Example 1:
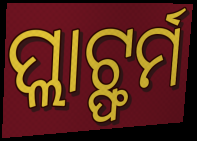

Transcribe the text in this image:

ପ୍ଲାଟ୍ଫର୍ମ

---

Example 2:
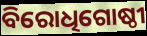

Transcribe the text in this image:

ବିରୋଧିଗୋଷ୍ଠୀ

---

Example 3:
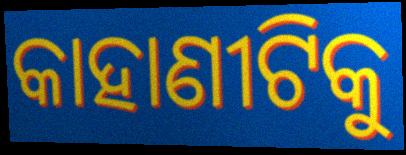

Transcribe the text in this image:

କାହାଣୀଟିକୁ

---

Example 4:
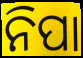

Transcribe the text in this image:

ନିପା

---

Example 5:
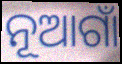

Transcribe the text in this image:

ନୂଆଗାଁ